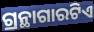
ଗ୍ରନ୍ଥାଗାରଟିଏ